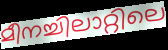
മീനച്ചിലാറ്റിലെ